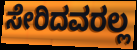
ಸೇರಿದವರಲ್ಲ